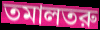
তমালতরু